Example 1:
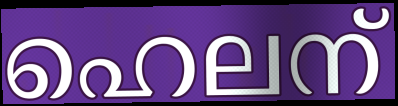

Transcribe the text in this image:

ഹെലന്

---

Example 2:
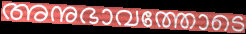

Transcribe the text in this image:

അനുഭാവത്തോടെ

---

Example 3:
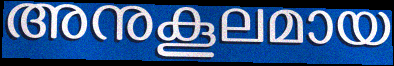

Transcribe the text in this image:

അനുകൂലമായ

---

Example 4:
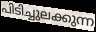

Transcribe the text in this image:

പിടിച്ചുലക്കുന്ന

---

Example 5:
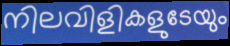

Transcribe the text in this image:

നിലവിളികളുടേയും